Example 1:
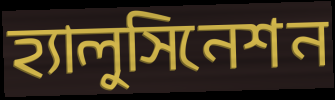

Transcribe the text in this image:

হ্যালুসিনেশন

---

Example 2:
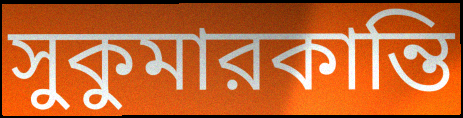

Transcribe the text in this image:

সুকুমারকান্তি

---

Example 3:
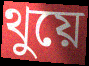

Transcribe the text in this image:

থুয়ে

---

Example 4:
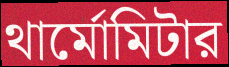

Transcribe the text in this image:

থার্মোমিটার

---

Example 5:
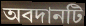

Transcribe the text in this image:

অবদানটি